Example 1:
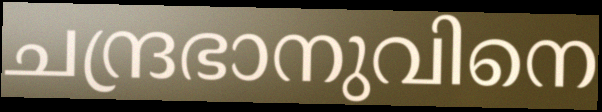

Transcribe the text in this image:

ചന്ദ്രഭാനുവിനെ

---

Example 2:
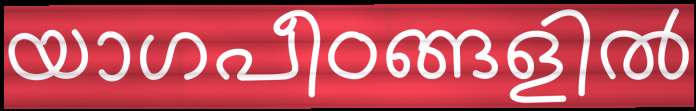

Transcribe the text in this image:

യാഗപീഠങ്ങളിൽ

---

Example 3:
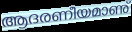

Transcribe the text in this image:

ആദരണീയമാണു്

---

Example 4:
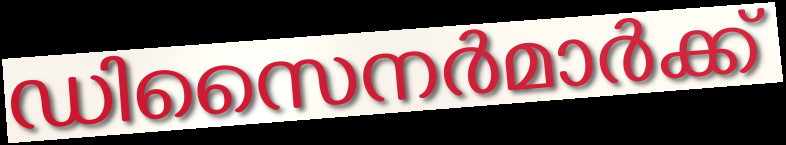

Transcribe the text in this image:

ഡിസൈനർമാർക്ക്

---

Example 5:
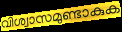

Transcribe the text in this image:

വിശ്വാസമുണ്ടാകുക